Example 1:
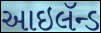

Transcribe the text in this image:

આઇલૅન્ડ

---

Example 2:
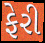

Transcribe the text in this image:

ફેરી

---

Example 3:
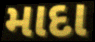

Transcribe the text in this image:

માદા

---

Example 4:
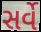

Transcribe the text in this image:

સર્વે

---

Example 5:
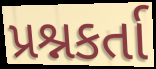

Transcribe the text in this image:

પ્રશ્નકર્તા